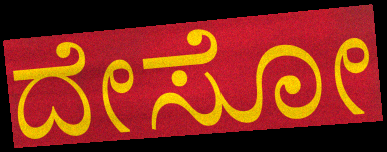
ದೇಸೋ